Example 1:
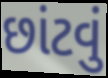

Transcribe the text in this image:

છાંટવું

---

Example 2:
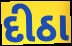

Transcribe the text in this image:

દીઠા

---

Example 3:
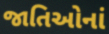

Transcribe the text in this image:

જાતિઓનાં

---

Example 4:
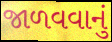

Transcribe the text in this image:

જાળવવાનું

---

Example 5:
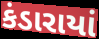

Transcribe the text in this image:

કંડારાયાં